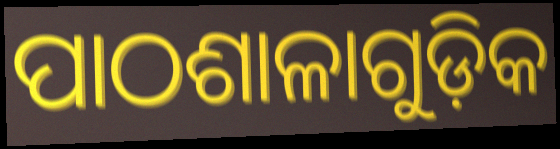
ପାଠଶାଳାଗୁଡ଼ିକ